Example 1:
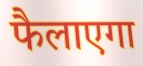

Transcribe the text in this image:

फैलाएगा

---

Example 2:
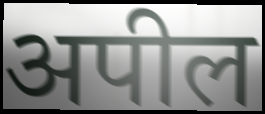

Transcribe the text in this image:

अपील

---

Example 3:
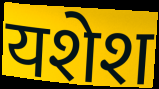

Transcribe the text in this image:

यशेश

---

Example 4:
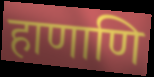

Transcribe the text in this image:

हाणाणि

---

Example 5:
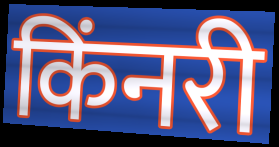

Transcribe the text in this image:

किंनरी